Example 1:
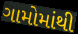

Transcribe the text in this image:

ગામોમાંથી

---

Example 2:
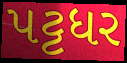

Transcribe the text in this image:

પટ્ટધર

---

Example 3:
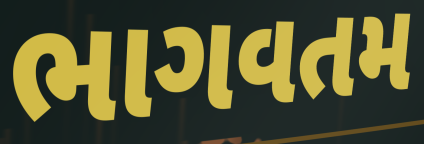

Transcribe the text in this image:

ભાગવતમ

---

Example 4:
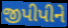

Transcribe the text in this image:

જીપીપીને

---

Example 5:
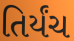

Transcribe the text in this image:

તિર્યંચ